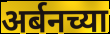
अर्बनच्या